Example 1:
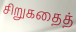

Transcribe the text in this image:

சிறுகதைத்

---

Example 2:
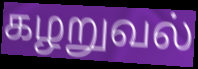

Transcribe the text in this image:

கழறுவல்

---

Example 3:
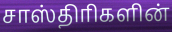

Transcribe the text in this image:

சாஸ்திரிகளின்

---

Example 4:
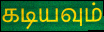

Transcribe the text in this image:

கடியவும்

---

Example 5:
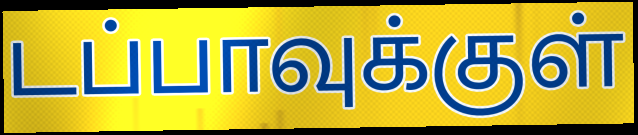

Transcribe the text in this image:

டப்பாவுக்குள்